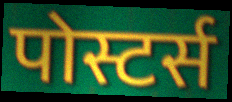
पोस्टर्स